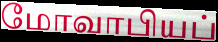
மோவாபியப்